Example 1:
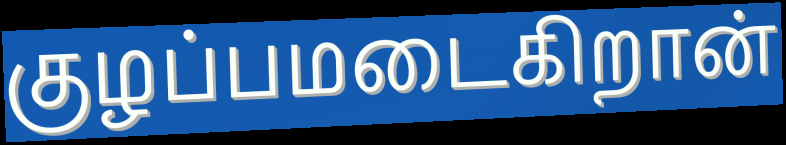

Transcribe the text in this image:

குழப்பமடைகிறான்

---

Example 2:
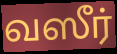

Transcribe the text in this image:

வஸீர்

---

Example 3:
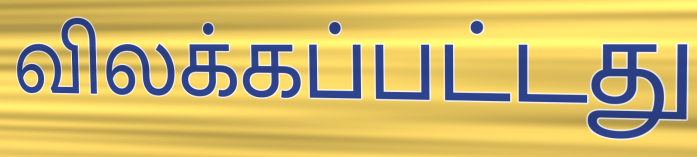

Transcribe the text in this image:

விலக்கப்பட்டது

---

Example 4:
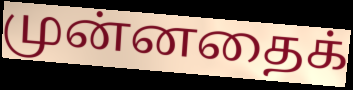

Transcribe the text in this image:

முன்னதைக்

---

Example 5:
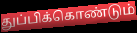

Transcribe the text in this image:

துப்பிக்கொண்டும்